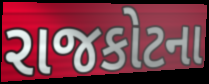
રાજકોટના